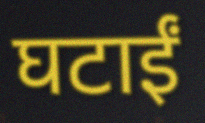
घटाईं